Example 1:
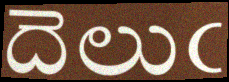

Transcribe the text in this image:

దెలుఁ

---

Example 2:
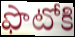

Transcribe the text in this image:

ఫొటోకి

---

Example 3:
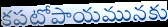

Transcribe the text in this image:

కపటోపాయమునకు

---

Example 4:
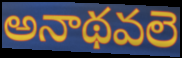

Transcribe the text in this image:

అనాథవలె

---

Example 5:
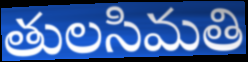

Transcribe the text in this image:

తులసిమతి